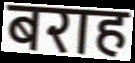
बराह